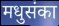
मधुसंका